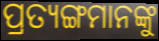
ପ୍ରତ୍ୟଙ୍ଗମାନଙ୍କୁ